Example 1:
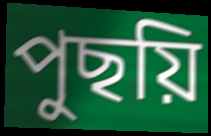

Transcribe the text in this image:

পুছয়ি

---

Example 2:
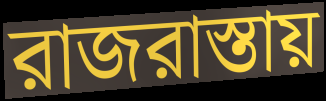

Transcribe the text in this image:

রাজরাস্তায়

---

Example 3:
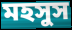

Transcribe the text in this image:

মহসুস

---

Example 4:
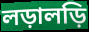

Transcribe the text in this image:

লড়ালড়ি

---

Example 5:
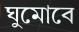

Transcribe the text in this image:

ঘুমোবে